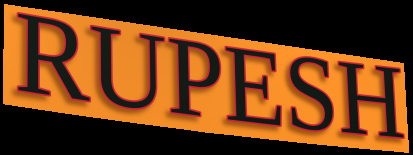
RUPESH